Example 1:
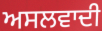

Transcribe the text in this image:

ਅਸਲਵਾਦੀ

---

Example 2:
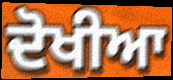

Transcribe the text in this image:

ਦੋਖੀਆ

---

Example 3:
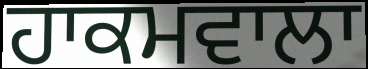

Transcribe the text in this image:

ਹਾਕਮਵਾਲਾ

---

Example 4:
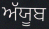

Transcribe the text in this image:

ਅੱਯੂਬ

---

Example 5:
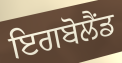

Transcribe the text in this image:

ਇਗਬੋਲੈਂਡ